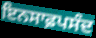
ਇਨਸਾਫ਼ਪਸੰਦ